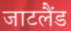
जाटलैंड